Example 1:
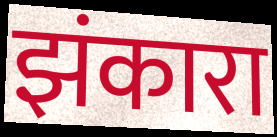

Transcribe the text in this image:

झंकारा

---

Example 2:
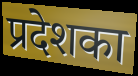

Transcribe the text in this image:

प्रदेशका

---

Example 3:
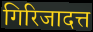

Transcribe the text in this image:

गिरिजादत्त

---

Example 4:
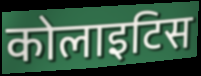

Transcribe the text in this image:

कोलाइटिस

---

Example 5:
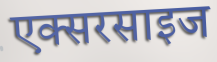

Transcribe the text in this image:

एक्सरसाइज